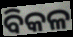
ବିକଳ